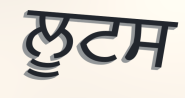
ਲੂਟਸ